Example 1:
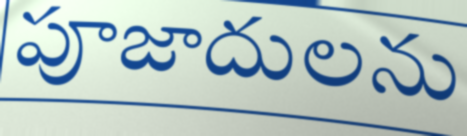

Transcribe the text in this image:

పూజాదులను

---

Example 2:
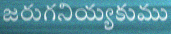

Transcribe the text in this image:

జరుగనియ్యకుము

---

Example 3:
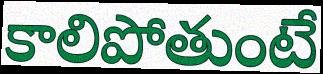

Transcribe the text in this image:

కాలిపోతుంటే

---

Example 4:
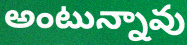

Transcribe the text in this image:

అంటున్నావు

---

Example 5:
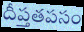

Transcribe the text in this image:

దీప్తతపసం